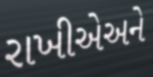
રાખીએઅને